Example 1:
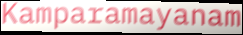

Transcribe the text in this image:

Kamparamayanam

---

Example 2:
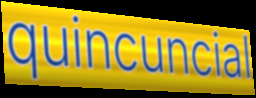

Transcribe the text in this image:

quincuncial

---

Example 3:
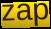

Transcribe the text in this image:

zap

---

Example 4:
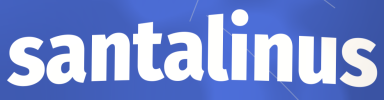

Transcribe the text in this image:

santalinus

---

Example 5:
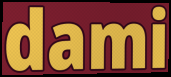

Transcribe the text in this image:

dami